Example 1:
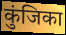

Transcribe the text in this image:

कुंजिका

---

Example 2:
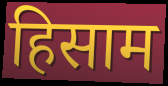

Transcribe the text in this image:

हिसाम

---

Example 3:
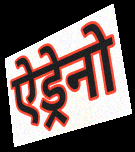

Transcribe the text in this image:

ऐड्रेनो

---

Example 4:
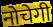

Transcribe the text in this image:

नोचेगी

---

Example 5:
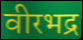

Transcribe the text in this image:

वीरभद्र